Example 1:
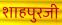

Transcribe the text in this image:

शाहपुरजी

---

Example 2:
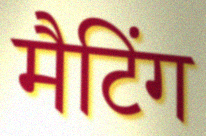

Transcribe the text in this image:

मैटिंग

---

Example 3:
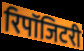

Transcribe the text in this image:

रिपॉजिटरी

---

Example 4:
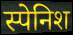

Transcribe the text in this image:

स्पेनिश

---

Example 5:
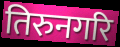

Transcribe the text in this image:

तिरुनगरि